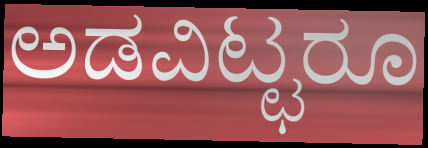
ಅಡವಿಟ್ಟರೂ